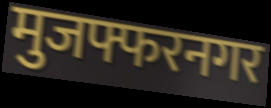
मुजफ्फरनगर